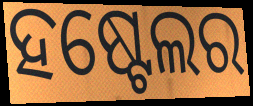
ହଷ୍ଟେଲର